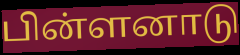
பின்ளனாடு